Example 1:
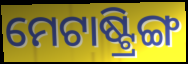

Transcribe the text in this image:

ମେଟାଷ୍ଟ୍ରିଙ୍ଗ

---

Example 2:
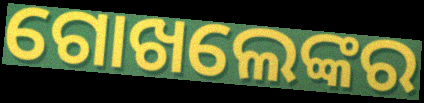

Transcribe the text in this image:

ଗୋଖଲେଙ୍କର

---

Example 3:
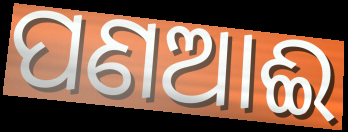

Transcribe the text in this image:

ପଣଆଈ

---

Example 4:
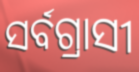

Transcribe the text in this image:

ସର୍ବଗ୍ରାସୀ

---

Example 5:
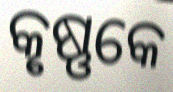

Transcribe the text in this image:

କୃଷ୍ଣକେ